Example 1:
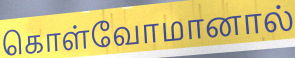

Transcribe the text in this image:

கொள்வோமானால்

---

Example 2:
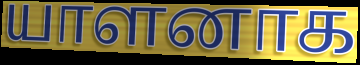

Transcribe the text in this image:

யாளனாக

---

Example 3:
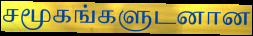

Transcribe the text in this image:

சமூகங்களுடனான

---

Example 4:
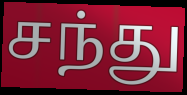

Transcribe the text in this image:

சந்து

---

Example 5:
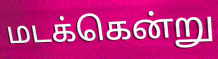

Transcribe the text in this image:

மடக்கென்று